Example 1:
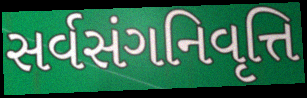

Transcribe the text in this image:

સર્વસંગનિવૃત્તિ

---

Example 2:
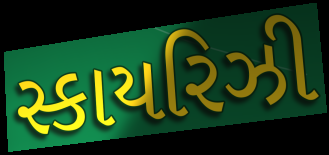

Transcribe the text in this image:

સ્કાયરિઝી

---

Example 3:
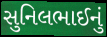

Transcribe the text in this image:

સુનિલભાઈનું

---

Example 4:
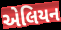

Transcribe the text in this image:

એલિયન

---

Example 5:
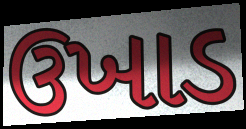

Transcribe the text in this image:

ઉખાડ